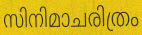
സിനിമാചരിത്രം